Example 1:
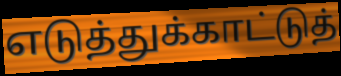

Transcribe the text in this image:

எடுத்துக்காட்டுத்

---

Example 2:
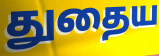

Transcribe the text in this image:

துதைய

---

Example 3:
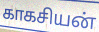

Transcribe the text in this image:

காகசியன்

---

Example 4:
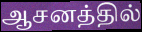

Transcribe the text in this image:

ஆசனத்தில்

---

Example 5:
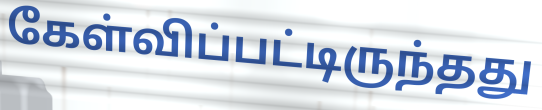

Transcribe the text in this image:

கேள்விப்பட்டிருந்தது